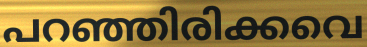
പറഞ്ഞിരിക്കവെ